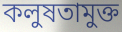
কলুষতামুক্ত